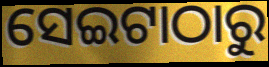
ସେଇଟାଠାରୁ